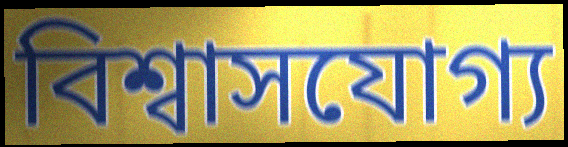
বিশ্বাসযোগ্য